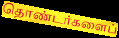
தொண்டர்களைப்